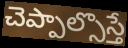
చెప్పాల్సొస్తే